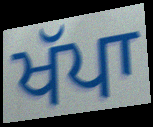
ਖੱਪਾ